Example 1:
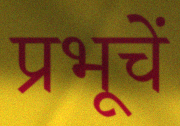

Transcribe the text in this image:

प्रभूचें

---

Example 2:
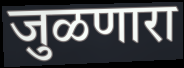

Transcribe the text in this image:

जुळणारा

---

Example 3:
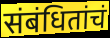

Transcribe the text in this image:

संबंधितांचं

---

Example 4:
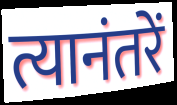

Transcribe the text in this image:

त्यानंतरें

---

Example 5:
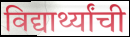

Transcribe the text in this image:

विद्यार्थ्‍यांची